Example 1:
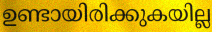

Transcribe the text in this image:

ഉണ്ടായിരിക്കുകയില്ല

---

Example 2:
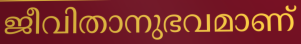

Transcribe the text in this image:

ജീവിതാനുഭവമാണ്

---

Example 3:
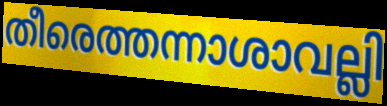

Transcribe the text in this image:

തീരെത്തന്നാശാവല്ലി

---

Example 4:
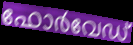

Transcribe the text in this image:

ഫോർവേഡ്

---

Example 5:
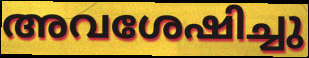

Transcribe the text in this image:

അവശേഷിച്ചു